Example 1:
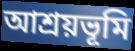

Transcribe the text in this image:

আশ্রয়ভূমি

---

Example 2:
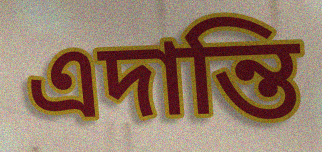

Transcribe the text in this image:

এদান্তি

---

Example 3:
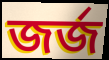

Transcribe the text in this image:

জর্জ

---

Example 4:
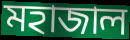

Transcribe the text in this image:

মহাজাল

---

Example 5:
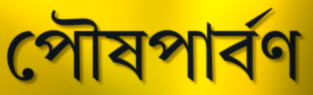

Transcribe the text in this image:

পৌষপার্বণ